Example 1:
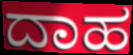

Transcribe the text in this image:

ದಾಹ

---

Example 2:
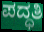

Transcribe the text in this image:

ಪದ್ಧತಿ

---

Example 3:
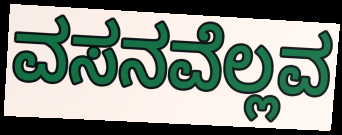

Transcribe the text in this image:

ವಸನವೆಲ್ಲವ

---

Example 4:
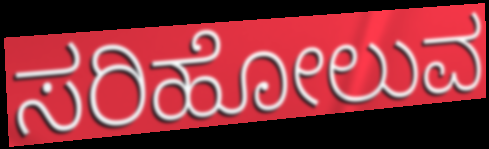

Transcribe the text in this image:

ಸರಿಹೋಲುವ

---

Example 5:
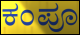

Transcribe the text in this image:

ಕಂಪೂ